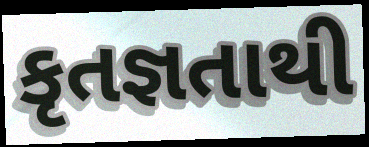
કૃતજ્ઞતાથી